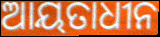
ଆୟତାଧୀନ